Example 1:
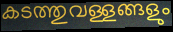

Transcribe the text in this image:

കടത്തുവള്ളങ്ങളും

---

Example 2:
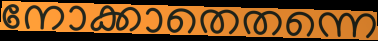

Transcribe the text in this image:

നോക്കാതെതന്നെ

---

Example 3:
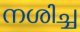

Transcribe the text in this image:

നശിച്ച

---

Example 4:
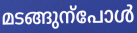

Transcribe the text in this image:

മടങ്ങുന്പോൾ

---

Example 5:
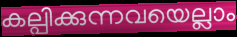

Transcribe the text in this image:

കല്പിക്കുന്നവയെല്ലാം